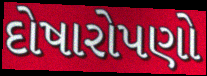
દોષારોપણો